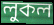
লুকল